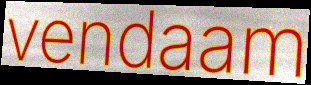
vendaam